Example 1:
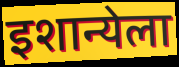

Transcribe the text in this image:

इशान्येला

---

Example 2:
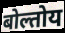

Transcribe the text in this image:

बोल्तोय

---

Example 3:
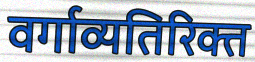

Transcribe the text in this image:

वर्गाव्यतिरिक्त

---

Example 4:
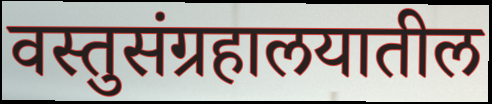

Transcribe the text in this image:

वस्तुसंग्रहालयातील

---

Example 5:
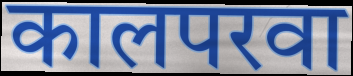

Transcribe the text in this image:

कालपरवा